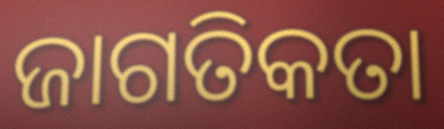
ଜାଗତିକତା